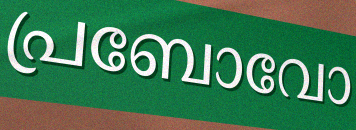
പ്രബോവോ